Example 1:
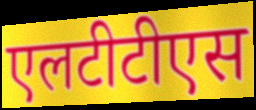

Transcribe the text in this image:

एलटीटीएस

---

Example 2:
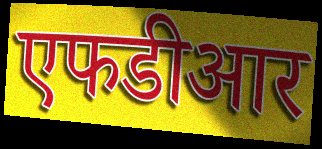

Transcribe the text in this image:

एफडीआर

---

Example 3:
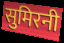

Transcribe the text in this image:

सुमिरनी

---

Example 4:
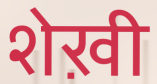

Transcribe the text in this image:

शेख़ी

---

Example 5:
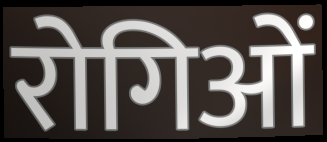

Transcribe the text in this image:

रोगिओं